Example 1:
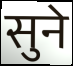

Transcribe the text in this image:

सुने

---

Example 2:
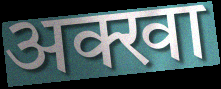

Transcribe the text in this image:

अक्खा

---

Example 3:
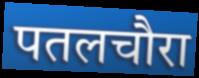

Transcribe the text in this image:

पतलचौरा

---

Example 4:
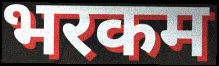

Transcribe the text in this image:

भरकम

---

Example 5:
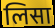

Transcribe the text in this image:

लिसा